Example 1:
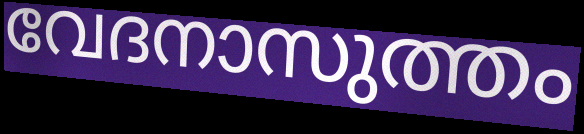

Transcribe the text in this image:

വേദനാസുത്തം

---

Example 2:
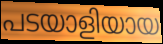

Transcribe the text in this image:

പടയാളിയായ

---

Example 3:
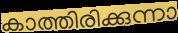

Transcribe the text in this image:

കാത്തിരിക്കുന്നാ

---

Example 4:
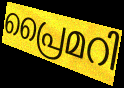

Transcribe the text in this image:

പ്രൈമറി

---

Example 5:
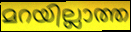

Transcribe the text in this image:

മറയില്ലാത്ത